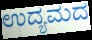
ಉದ್ಯಮದ